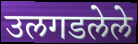
उलगडलेले